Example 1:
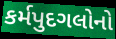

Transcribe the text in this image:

કર્મપુદગલોનો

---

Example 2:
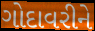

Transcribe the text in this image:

ગોદાવરીને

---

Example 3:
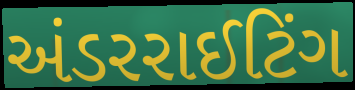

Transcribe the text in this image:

અંડરરાઈટિંગ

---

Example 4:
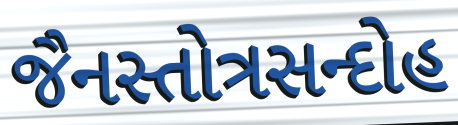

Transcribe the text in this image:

જૈનસ્તોત્રસન્દોહ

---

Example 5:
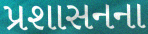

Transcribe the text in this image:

પ્રશાસનના